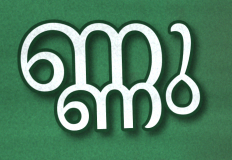
ണ്ണു